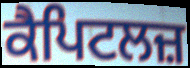
ਕੈਪਿਟਲਜ਼